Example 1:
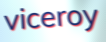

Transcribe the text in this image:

viceroy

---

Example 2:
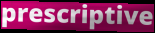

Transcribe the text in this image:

prescriptive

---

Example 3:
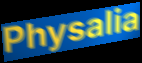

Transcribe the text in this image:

Physalia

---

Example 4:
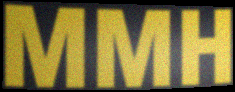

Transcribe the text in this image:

MMH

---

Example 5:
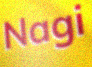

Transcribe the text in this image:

Nagi